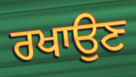
ਰਖਾਉਣ